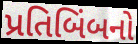
પ્રતિબિંબનો